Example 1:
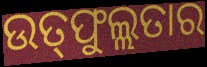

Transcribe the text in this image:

ଉତ୍‌ଫୁଲ୍ଲତାର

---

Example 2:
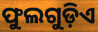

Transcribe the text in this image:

ଫୁଲଗୁଡ଼ିଏ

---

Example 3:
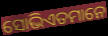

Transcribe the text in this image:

ସୋଭିଏତମାନେ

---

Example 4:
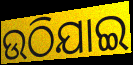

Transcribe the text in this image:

ଉଠିଯାଇ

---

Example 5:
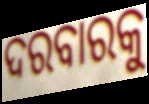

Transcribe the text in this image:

ଦରବାରକୁ